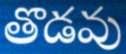
తొడవు